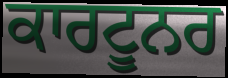
ਕਾਰਟੂਨਰ